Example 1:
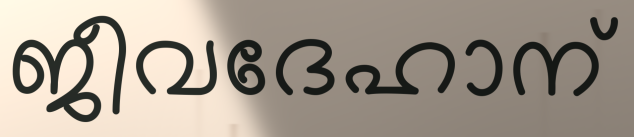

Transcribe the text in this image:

ജീവദേഹാന്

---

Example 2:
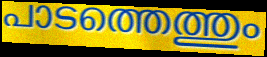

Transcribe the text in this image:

പാടത്തെത്തും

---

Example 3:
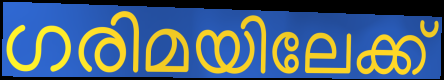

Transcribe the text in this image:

ഗരിമയിലേക്ക്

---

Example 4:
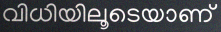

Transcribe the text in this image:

വിധിയിലൂടെയാണ്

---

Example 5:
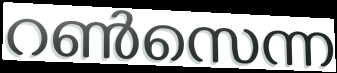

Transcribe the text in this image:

റൺസെന്ന